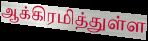
ஆக்கிரமித்துள்ள